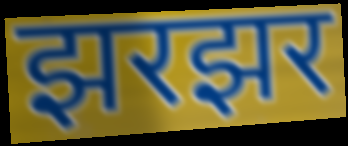
झरझर